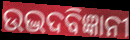
ଉଦ୍ଭଦବିଜ୍ଞାନୀ